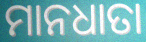
ମାନଧାତା